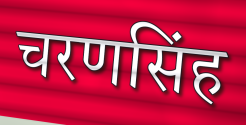
चरणसिंह